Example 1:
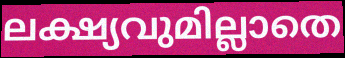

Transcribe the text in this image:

ലക്ഷ്യവുമില്ലാതെ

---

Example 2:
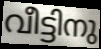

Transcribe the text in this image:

വീട്ടിനു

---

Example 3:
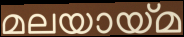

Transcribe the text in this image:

മലയായ്മ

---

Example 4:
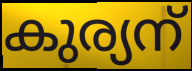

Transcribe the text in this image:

കുര്യന്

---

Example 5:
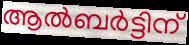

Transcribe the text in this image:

ആൽബർട്ടിന്